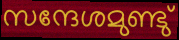
സന്ദേശമുണ്ടു്